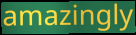
amazingly